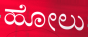
ಹೋಲು